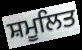
ਸ਼ਮੂਲਿਤ